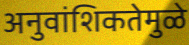
अनुवांशिकतेमुळे